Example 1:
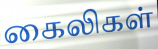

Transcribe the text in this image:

கைலிகள்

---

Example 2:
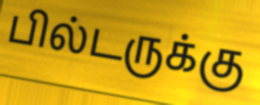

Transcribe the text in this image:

பில்டருக்கு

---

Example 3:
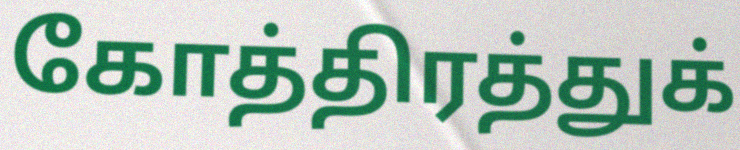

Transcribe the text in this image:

கோத்திரத்துக்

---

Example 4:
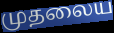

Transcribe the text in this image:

முதலைய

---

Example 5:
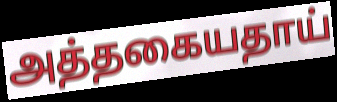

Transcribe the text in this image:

அத்தகையதாய்